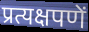
प्रत्यक्षपणें